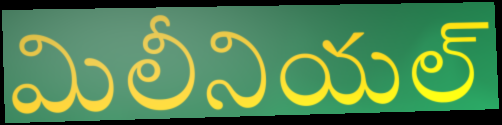
మిలీనియల్